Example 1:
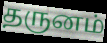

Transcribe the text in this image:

தருனம்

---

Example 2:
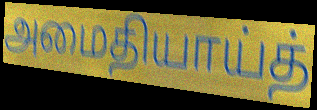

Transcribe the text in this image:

அமைதியாய்த்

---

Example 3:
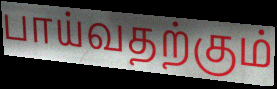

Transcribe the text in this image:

பாய்வதற்கும்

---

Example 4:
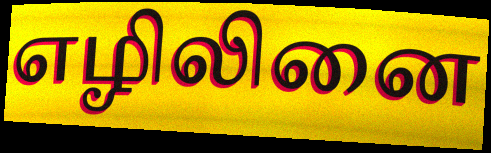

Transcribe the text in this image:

எழிலினை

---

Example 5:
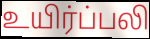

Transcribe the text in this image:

உயிர்ப்பலி